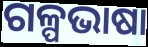
ଗଳ୍ପଭାଷା